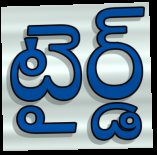
టైర్డ్